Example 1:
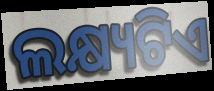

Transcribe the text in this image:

ଲକ୍ଷ୍ୟଟିଏ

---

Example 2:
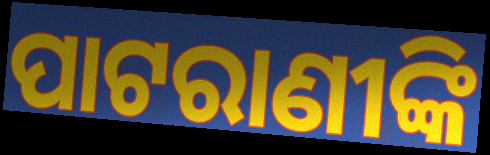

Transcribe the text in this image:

ପାଟରାଣୀଙ୍କି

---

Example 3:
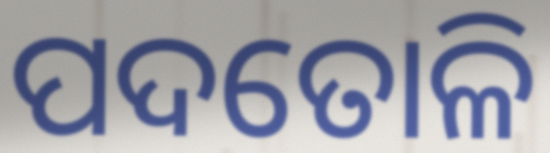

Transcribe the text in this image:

ପଦତୋଳି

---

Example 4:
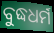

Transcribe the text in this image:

ବୁଦ୍ଧଧର୍ମ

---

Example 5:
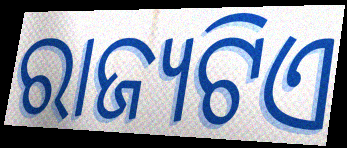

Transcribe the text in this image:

ରାଜ୍ୟଟିଏ